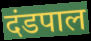
दंडपाल